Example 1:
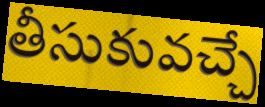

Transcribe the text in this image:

తీసుకువచ్చే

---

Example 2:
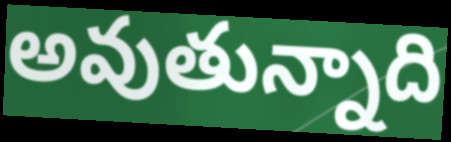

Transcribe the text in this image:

అవుతున్నాది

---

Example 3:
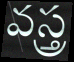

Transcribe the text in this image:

వస్త్ర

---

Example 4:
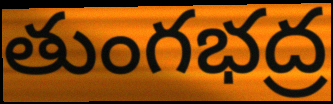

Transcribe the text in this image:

తుంగభద్ర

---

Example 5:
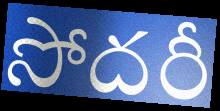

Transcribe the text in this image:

సోదరీ